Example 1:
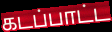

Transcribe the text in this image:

கடப்பாட்ட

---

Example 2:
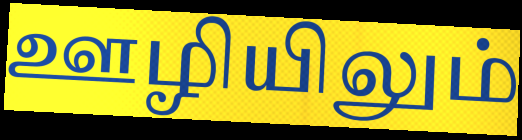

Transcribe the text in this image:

ஊழியிலும்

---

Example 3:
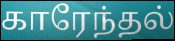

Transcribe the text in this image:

காரேந்தல்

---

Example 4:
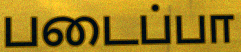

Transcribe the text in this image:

படைப்பா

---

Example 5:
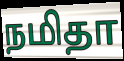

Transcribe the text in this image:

நமிதா